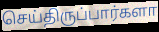
செய்திருப்பார்களா